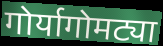
गोर्यागोमट्या